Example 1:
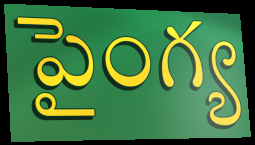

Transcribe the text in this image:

పైంగ్య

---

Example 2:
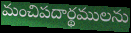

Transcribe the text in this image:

మంచిపదార్థములను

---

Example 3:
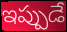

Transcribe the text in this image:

ఇప్పుడే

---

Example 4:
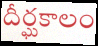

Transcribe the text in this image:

దీర్ఘకాలం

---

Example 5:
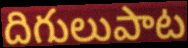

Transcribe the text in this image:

దిగులుపాట